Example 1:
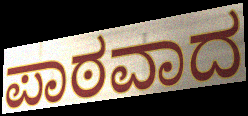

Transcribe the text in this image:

ಪಾಠವಾದ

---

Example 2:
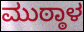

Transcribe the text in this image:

ಮುಠ್ಠಾಳ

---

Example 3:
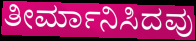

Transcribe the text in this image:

ತೀರ್ಮಾನಿಸಿದವು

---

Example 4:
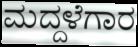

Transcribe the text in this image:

ಮದ್ದಳೆಗಾರ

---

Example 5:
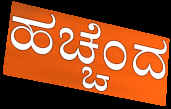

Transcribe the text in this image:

ಹಚ್ಚೆಂದ